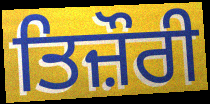
ਤਿਜ਼ੌਰੀ